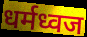
धर्मध्वज